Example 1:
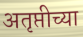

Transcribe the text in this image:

अतृप्तीच्या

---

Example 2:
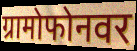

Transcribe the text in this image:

ग्रामोफोनवर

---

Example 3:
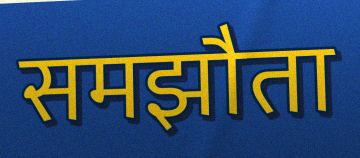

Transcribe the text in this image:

समझौता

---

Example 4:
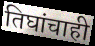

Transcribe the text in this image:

तिघांचाही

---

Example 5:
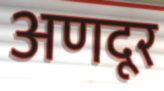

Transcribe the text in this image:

अणदूर